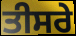
ਤੀਸਰੇ